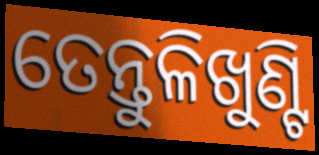
ତେନ୍ତୁଳିଖୁଣ୍ଟି